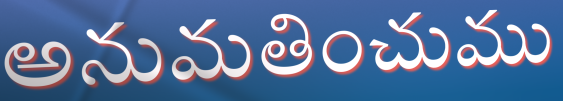
అనుమతించుము